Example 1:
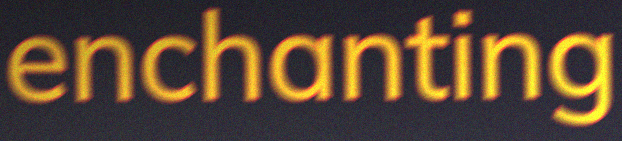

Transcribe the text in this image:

enchanting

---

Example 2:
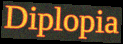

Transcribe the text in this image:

Diplopia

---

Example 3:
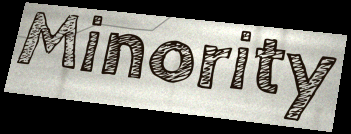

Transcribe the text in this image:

Minority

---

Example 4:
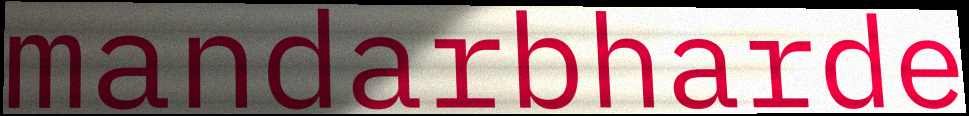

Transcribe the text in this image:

mandarbharde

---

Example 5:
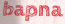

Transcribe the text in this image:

bapna